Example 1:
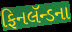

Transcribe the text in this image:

ફિનલૅન્ડના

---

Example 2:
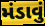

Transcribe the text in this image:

મંડાવું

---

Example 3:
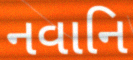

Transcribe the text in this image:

નવાનિ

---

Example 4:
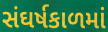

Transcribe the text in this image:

સંઘર્ષકાળમાં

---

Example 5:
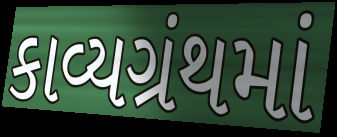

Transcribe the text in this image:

કાવ્યગ્રંથમાં